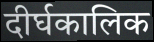
दीर्घकालिक